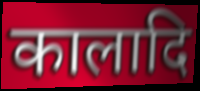
कालादि